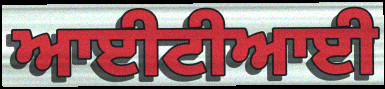
ਆਈਟੀਆਈ